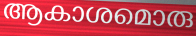
ആകാശമൊരു